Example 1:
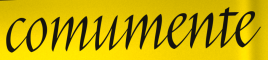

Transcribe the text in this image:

comumente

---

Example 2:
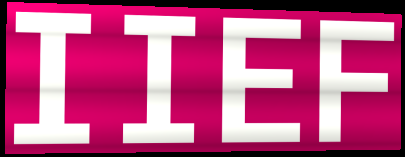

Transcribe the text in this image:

IIEF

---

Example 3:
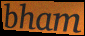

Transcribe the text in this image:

bham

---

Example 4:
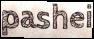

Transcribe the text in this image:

pashei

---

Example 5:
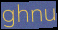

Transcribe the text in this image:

ghnu